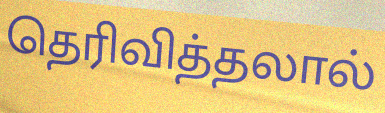
தெரிவித்தலால்